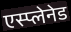
एस्प्लेनेड